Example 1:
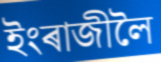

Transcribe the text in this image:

ইংৰাজীলৈ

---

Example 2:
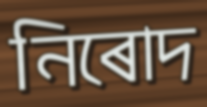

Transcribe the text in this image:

নিৰোদ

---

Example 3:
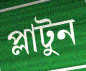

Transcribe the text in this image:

প্লাটুন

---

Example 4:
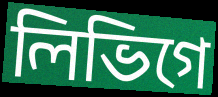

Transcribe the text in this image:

লিভিগে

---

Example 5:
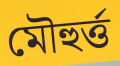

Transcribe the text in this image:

মৌহুৰ্ত্ত